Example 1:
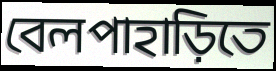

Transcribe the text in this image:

বেলপাহাড়িতে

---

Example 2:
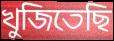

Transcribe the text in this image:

খুজিতেছি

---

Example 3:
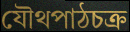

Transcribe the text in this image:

যৌথপাঠচক্র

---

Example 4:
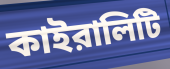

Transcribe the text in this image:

কাইরালিটি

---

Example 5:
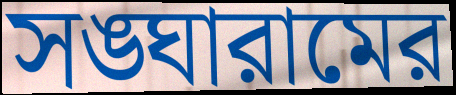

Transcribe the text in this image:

সঙ্ঘারামের